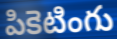
పికెటింగు